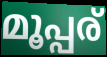
മൂപ്പര്